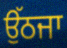
ਉੱਠਜਾ